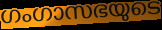
ഗംഗാസഭയുടെ